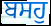
ਬਸਹੁ